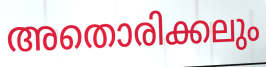
അതൊരിക്കലും